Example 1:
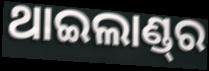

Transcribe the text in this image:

ଥାଇଲାଣ୍ଡ୍‌ର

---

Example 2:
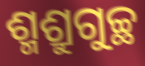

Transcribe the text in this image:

ଶ୍ମଶ୍ରୁଗୁଚ୍ଛ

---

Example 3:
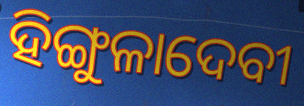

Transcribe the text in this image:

ହିଙ୍ଗୁଳାଦେବୀ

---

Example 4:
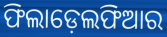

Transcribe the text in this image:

ଫିଲାଡ଼େଲଫିଆର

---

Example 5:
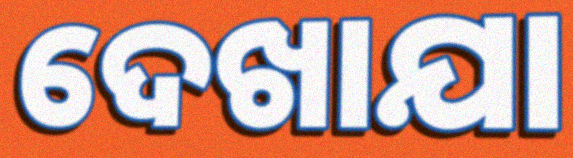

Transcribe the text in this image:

ଦେଖାଯା